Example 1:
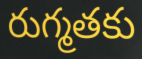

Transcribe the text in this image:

రుగ్మతకు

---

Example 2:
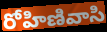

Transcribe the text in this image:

రోహిణివాసి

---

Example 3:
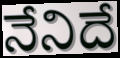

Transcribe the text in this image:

నేనిదే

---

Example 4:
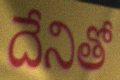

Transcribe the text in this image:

దేనితో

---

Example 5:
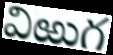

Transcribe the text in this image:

విఱుగ